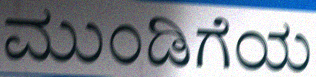
ಮುಂಡಿಗೆಯ